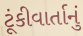
ટૂંકીવાર્તાનું